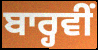
ਬਾਰ੍ਹਵੀਂ